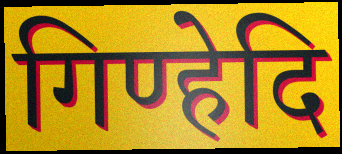
गिण्हेदि